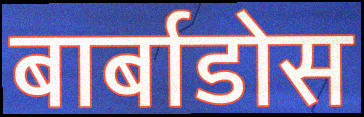
बार्बाडोस